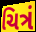
ચિત્રં